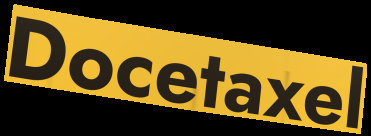
Docetaxel